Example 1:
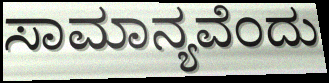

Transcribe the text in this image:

ಸಾಮಾನ್ಯವೆಂದು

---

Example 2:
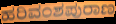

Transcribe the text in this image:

ಹರಿವಂಶಪುರಾಣ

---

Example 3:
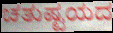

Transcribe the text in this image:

ಚತುಷ್ಟಯದ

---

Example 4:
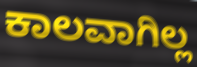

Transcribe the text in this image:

ಕಾಲವಾಗಿಲ್ಲ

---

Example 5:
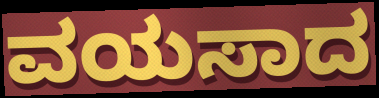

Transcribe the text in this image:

ವಯಸಾದ